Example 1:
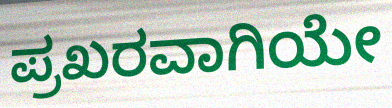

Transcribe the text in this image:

ಪ್ರಖರವಾಗಿಯೇ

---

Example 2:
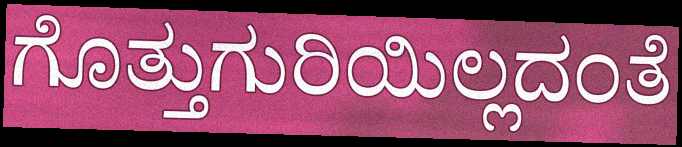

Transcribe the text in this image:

ಗೊತ್ತುಗುರಿಯಿಲ್ಲದಂತೆ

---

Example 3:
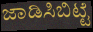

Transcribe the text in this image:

ಜಾಡಿಸಿಬಿಟ್ಟೆ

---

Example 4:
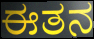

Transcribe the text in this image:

ಈತನ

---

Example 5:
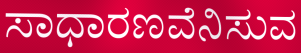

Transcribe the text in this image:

ಸಾಧಾರಣವೆನಿಸುವ